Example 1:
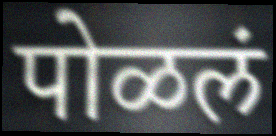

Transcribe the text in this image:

पोळलं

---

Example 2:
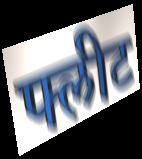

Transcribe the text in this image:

फ्लीट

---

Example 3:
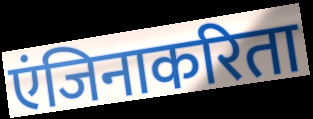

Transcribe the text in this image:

एंजिनाकरिता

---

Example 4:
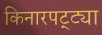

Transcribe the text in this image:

किनारपट्ट्या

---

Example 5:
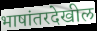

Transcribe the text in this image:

भाषांतरदेखील